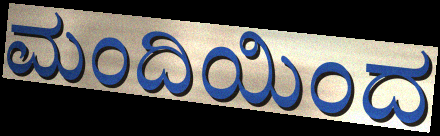
ಮಂದಿಯಿಂದ